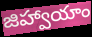
జిహ్వాయాం